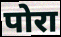
पोरा